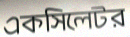
একসিলেটর